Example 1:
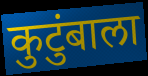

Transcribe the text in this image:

कुटुंबाला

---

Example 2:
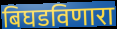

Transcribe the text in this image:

बिघडविणारा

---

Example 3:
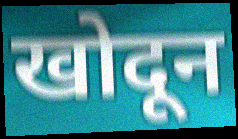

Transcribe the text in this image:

खोदून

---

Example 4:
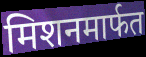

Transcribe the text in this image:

मिशनमार्फत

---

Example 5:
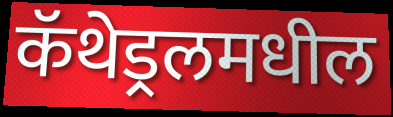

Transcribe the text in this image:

कॅथेड्रलमधील